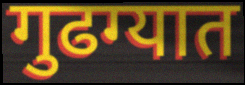
गुढग्यात